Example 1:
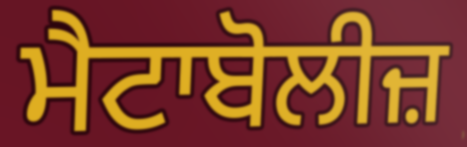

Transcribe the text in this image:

ਮੈਟਾਬੋਲੀਜ਼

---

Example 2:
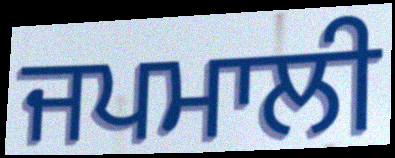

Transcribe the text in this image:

ਜਪਮਾਲੀ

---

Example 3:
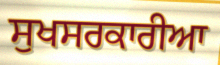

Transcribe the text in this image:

ਸੁਖਸਰਕਾਰੀਆ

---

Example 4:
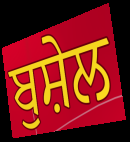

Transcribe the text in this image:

ਬੁਸ਼ੇਲ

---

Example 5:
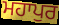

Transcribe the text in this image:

ਮਹਾਪੁਰ